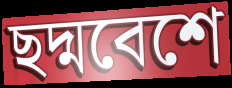
ছদ্মবেশে